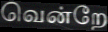
வென்றே